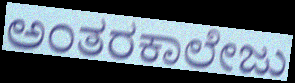
ಅಂತರಕಾಲೇಜು